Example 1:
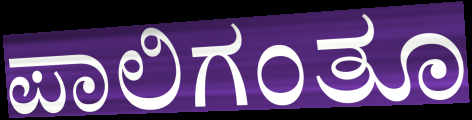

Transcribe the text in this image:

ಪಾಲಿಗಂತೂ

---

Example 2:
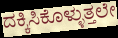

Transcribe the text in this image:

ದಕ್ಕಿಸಿಕೊಳ್ಳುತ್ತಲೇ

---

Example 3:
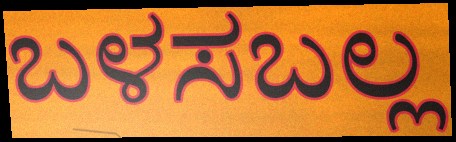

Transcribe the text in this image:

ಬಳಸಬಲ್ಲ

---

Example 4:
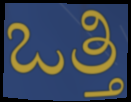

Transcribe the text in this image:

ಒತ್ತಿ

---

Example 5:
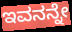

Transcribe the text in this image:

ಇವನನ್ನೇ